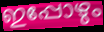
ഇപ്പോഴും